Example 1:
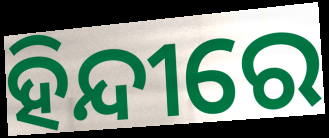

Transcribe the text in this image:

ହିନ୍ଦୀରେ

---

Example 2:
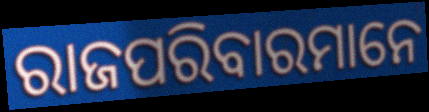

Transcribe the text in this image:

ରାଜପରିବାରମାନେ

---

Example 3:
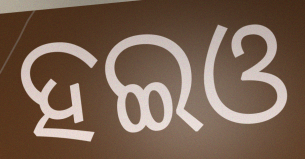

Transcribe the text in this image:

ହଇଓ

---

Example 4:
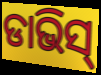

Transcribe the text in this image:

ଡାଭିସ୍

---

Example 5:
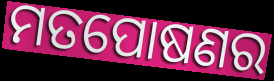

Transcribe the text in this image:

ମତପୋଷଣର